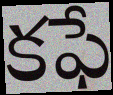
కఫే